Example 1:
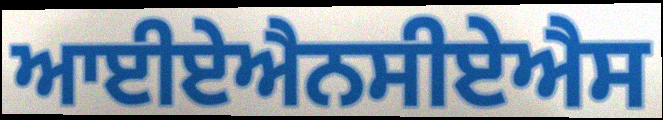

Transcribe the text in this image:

ਆਈਏਐਨਸੀਏਐਸ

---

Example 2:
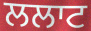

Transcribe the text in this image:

ਲਲਾਟ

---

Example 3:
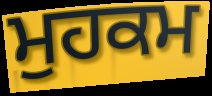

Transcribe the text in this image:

ਮੁਹਕਮ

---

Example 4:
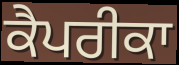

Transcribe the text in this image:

ਕੈਪਰੀਕਾ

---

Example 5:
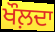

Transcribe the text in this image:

ਖੌਲ਼ਦਾ